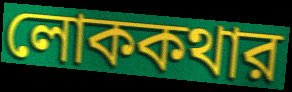
লোককথার